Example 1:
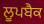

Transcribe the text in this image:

ਲੂਪਬੈਕ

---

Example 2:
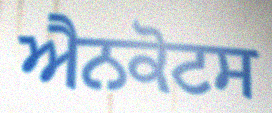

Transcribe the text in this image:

ਐਨਕੋਟਸ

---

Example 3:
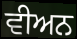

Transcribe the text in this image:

ਵੀਅਨ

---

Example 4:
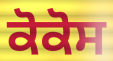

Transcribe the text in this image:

ਕੋਕੋਸ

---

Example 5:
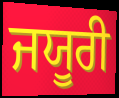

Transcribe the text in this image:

ਜਯੂਰੀ